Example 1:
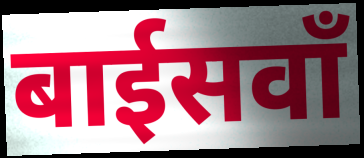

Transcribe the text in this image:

बाईसवाँ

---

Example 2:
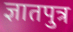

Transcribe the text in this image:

ज्ञातपुत्र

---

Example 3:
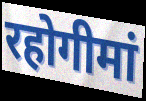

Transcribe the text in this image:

रहोगीमां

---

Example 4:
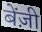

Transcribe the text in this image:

बेंज़ी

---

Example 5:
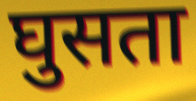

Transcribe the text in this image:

घुसता